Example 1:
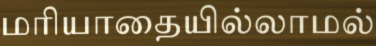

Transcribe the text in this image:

மரியாதையில்லாமல்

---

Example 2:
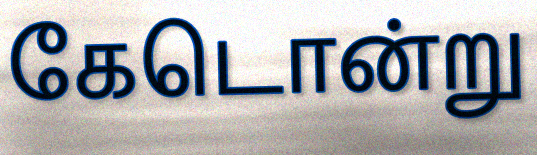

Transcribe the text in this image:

கேடொன்று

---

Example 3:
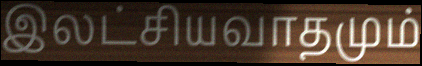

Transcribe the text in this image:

இலட்சியவாதமும்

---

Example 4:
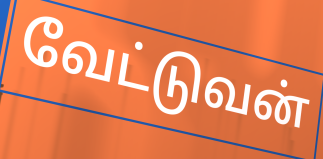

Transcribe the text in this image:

வேட்டுவன்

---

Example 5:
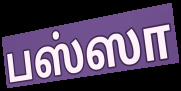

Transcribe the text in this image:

பஸ்ஸா